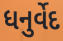
ધનુર્વેદ